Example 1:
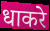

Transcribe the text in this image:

धाकरे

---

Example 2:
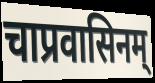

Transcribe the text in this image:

चाप्रवासिनम्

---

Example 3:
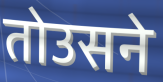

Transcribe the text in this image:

तोउसने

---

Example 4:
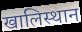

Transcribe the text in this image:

खालिस्थान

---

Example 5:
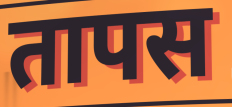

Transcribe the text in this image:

तापस